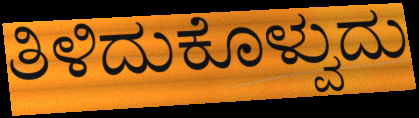
ತಿಳಿದುಕೊಳ್ವುದು